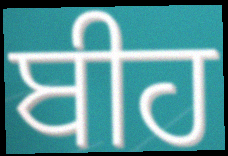
ਬੀਹ